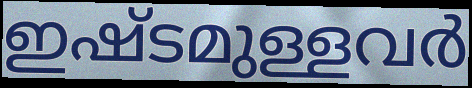
ഇഷ്ടമുള്ളവർ